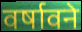
वर्षावने